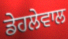
ਡੇਹਲੇਵਾਲ